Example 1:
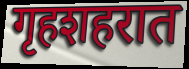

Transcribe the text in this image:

गृहशहरात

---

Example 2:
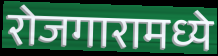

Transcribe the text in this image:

रोजगारामध्ये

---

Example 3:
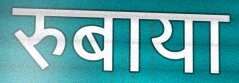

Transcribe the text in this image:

रुबाया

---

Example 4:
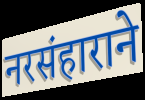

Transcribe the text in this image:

नरसंहाराने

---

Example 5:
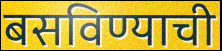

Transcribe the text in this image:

बसविण्याची